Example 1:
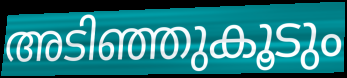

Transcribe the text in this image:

അടിഞ്ഞുകൂടും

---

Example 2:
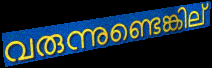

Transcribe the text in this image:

വരുന്നുണ്ടെങ്കില്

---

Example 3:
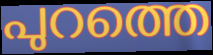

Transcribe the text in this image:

പുറത്തെ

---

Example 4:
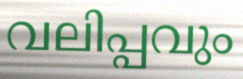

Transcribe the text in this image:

വലിപ്പവും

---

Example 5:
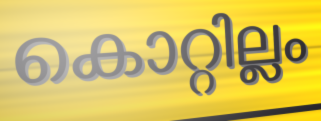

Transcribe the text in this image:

കൊറ്റില്ലം